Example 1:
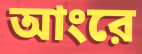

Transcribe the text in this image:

আংরে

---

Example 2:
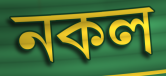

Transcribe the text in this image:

নকল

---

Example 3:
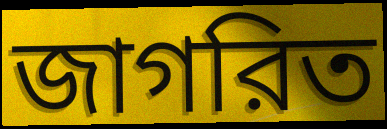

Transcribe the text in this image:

জাগরিত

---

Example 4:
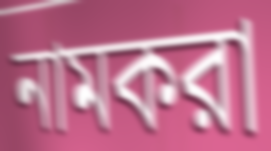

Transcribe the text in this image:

নামকরা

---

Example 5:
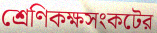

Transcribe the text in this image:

শ্রেণিকক্ষসংকটের